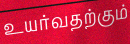
உயர்வதற்கும்